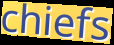
chiefs